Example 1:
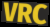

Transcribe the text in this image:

VRC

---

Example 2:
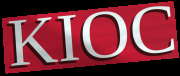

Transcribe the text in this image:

KIOC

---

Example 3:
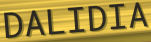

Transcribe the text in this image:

DALIDIA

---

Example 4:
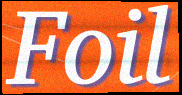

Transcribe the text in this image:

Foil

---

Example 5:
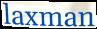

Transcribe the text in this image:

laxman